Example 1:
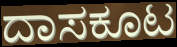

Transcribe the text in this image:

ದಾಸಕೂಟ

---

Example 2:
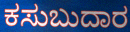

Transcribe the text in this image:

ಕಸುಬುದಾರ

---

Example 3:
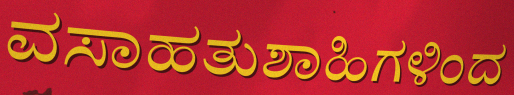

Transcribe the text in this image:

ವಸಾಹತುಶಾಹಿಗಳಿಂದ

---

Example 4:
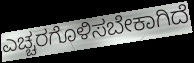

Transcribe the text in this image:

ಎಚ್ಚರಗೊಳಿಸಬೇಕಾಗಿದೆ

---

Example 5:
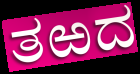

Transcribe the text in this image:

ತಱದ